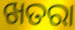
ଖତରା